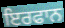
ਇਰਫਾਨ